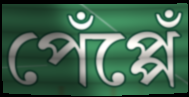
পেঁপ্পেঁ